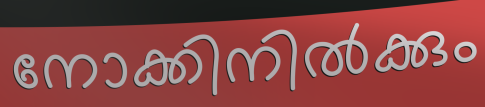
നോക്കിനിൽക്കും